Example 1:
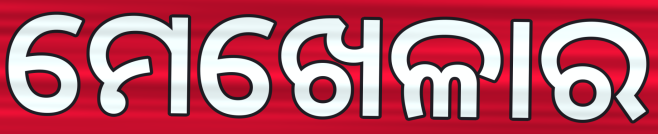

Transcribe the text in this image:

ମେଖେଳାର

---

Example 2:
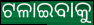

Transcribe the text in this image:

ଟଳାଇବାକୁ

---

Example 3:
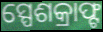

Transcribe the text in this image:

ସ୍ପେଶକ୍ରାଫ୍ଟ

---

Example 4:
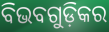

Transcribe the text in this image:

ବିଭବଗୁଡ଼ିକର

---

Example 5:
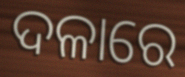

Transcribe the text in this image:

ଦଳାରେ